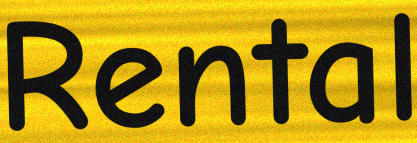
Rental